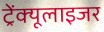
ट्रेंक्यूलाइजर